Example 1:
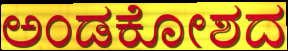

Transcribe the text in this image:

ಅಂಡಕೋಶದ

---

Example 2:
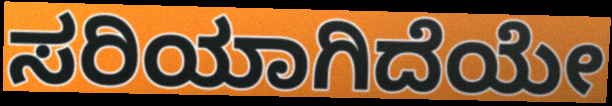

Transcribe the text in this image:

ಸರಿಯಾಗಿದೆಯೇ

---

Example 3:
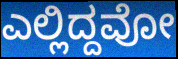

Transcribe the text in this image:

ಎಲ್ಲಿದ್ದವೋ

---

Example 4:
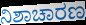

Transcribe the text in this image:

ನಿಶಾಚಾರಣ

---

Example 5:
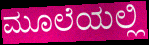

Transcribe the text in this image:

ಮೂಲೆಯಲ್ಲಿ